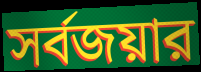
সর্বজয়ার